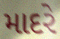
માદરે